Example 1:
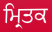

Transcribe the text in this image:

ਮ੍ਰਿਤਕ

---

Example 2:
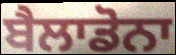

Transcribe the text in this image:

ਬੈਲਾਡੋਨਾ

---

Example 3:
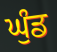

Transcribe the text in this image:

ਘੁੰਡ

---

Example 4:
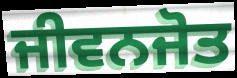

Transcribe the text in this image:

ਜੀਵਨਜੋਤ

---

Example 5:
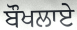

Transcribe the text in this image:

ਬੌਖਲਾਏ